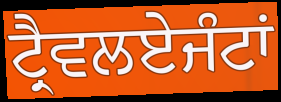
ਟ੍ਰੈਵਲਏਜੰਟਾਂ